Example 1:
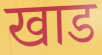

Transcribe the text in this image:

खाड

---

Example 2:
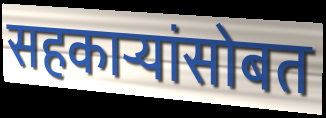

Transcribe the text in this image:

सहकाऱ्यांसोबत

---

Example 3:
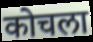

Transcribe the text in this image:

कोचला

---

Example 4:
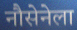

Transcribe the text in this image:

नौसेनेला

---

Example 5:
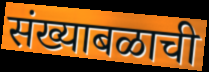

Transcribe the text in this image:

संख्याबळाची